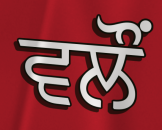
ਵਲੌਂ